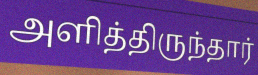
அளித்திருந்தார்